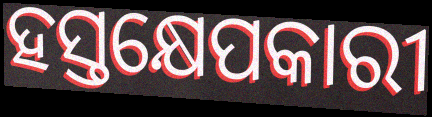
ହସ୍ତକ୍ଷେପକାରୀ